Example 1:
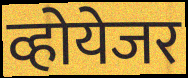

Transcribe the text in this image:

व्होयेजर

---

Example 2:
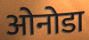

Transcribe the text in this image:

ओनोडा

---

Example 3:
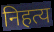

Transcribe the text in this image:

निहत्य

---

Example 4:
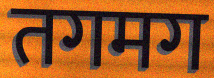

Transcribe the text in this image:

तगमग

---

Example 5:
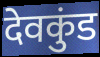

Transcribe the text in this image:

देवकुंड